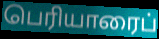
பெரியாரைப்